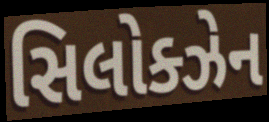
સિલોક્ઝેન